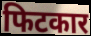
फिटकार